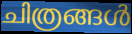
ചിത്രങ്ങൾ